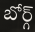
బోర్గ్